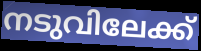
നടുവിലേക്ക്